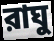
রাঘু